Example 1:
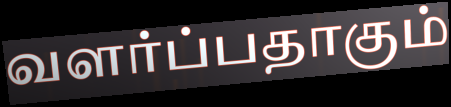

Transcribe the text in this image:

வளர்ப்பதாகும்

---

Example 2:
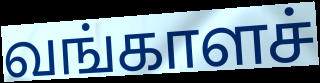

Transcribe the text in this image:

வங்காளச்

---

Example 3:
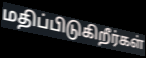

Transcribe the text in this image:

மதிப்பிடுகிறீர்கள்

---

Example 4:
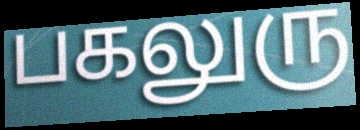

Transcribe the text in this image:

பகலுரு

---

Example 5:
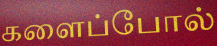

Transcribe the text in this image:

களைப்போல்